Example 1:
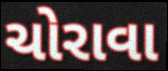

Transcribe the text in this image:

ચોરાવા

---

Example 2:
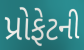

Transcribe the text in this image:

પ્રોફેટની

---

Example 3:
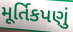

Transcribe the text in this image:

મૂર્તિકપણું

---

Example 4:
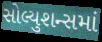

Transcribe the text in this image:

સોલ્યુશન્સમાં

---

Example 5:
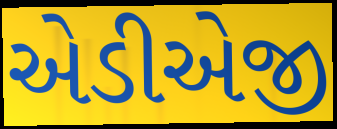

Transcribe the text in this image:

એડીએજી